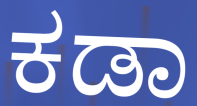
ಕಡಾ